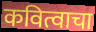
कवित्वाचा